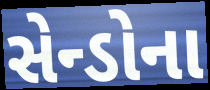
સેન્ડોના